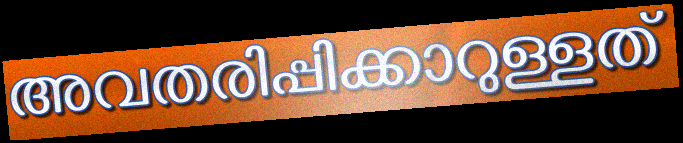
അവതരിപ്പിക്കാറുള്ളത്